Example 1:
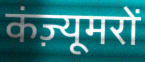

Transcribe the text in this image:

कंज़्यूमरों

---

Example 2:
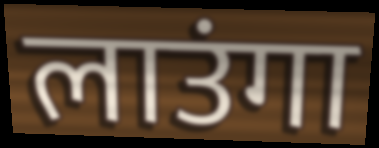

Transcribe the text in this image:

लाउंगा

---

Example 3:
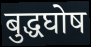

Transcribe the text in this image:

बुद्धघोष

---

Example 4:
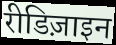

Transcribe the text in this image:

रीडिज़ाइन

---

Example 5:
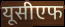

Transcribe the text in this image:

यूसीएफ